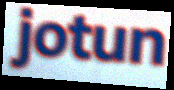
jotun